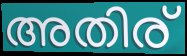
അതിര്